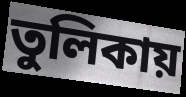
তুলিকায়